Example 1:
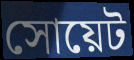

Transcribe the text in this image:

সোয়েট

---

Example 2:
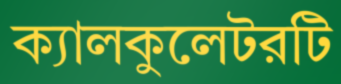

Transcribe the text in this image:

ক্যালকুলেটরটি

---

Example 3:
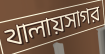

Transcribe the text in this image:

থালায়সাগর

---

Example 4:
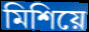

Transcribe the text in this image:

মিশিয়ে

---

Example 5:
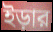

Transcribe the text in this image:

ইড়ার